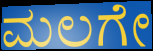
ಮಲಗೇ